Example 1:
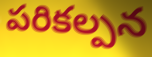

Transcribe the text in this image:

పరికల్పన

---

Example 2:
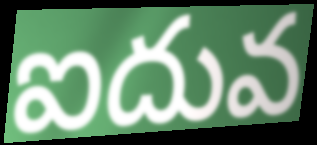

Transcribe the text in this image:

ఐదువ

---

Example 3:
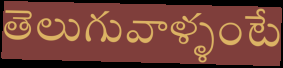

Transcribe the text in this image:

తెలుగువాళ్ళంటే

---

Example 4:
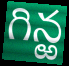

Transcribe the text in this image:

గిన్ఱ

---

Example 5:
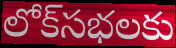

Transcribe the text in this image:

లోక్‌సభలకు